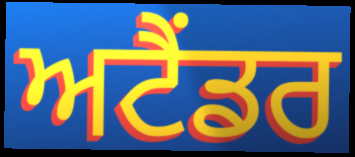
ਅਟੈਂਡਰ